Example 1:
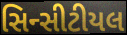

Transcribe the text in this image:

સિન્સીટીયલ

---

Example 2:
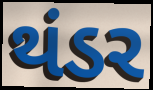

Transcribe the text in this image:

થંડર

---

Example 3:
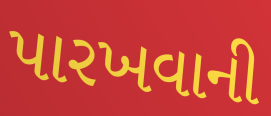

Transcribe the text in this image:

પારખવાની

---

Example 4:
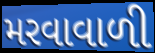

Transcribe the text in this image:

મરવાવાળી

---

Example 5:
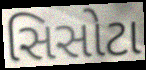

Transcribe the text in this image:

સિસોટા